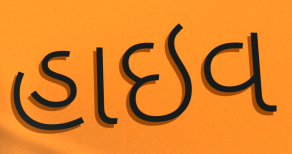
હાઇવ